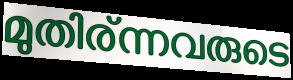
മുതിര്ന്നവരുടെ